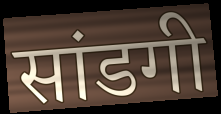
सांडगी